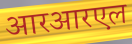
आरआरएल